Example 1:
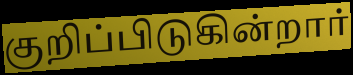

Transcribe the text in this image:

குறிப்பிடுகின்றார்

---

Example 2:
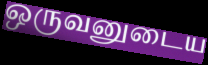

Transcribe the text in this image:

ஒருவனுடைய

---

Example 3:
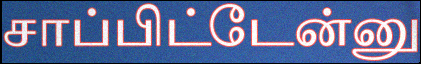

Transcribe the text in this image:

சாப்பிட்டேன்னு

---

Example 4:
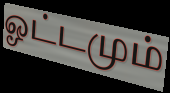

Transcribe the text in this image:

ஓட்டமும்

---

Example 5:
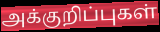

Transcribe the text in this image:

அக்குறிப்புகள்